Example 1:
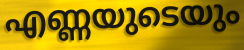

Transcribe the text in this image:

എണ്ണയുടെയും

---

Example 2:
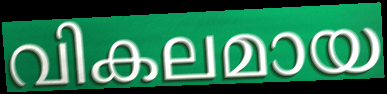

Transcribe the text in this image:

വികലമായ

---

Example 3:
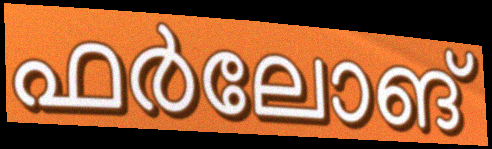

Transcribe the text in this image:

ഫർലോങ്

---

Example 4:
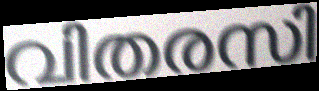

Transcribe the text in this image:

വിതരസി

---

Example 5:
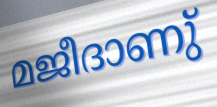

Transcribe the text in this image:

മജീദാണു്